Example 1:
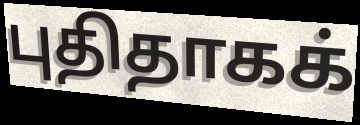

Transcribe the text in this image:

புதிதாகக்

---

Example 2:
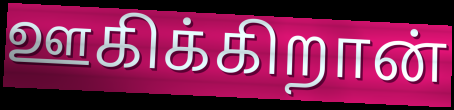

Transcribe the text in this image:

ஊகிக்கிறான்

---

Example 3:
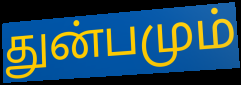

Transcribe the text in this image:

துன்பமும்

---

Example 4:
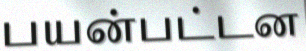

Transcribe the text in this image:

பயன்பட்டன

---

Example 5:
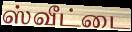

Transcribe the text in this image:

ஸ்வீட்டை